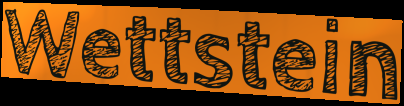
Wettstein